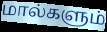
மால்களும்